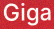
Giga